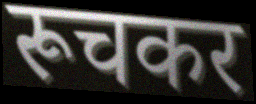
रूचकर